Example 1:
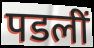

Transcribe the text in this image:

पडलीं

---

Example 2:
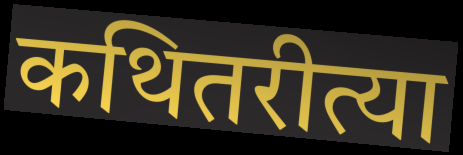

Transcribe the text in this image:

कथितरीत्या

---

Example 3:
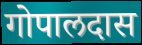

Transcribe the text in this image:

गोपालदास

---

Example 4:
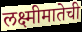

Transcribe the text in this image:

लक्ष्मीमातेची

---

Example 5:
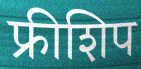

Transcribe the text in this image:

फ्रीशिप